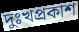
দুঃখপ্রকাশ